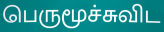
பெருமூச்சுவிட